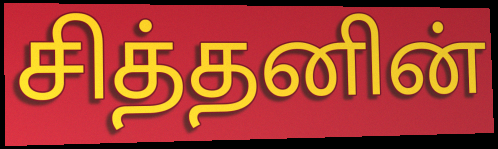
சித்தனின்